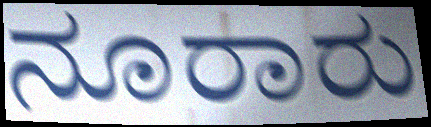
ನೂರಾರು